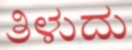
ತಿಳುದು